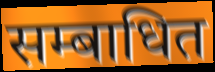
सम्बाधित